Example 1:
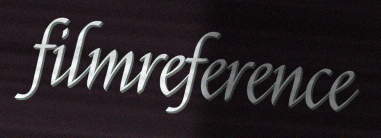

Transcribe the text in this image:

filmreference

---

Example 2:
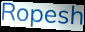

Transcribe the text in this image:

Ropesh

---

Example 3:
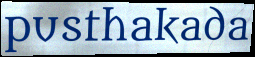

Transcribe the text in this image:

pusthakada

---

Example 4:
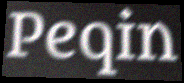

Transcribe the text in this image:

Peqin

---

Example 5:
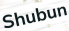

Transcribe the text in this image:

Shubun